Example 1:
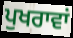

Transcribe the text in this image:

ਪੁਖਰਾਵਾਂ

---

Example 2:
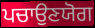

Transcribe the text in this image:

ਪਚਾਉਣਯੋਗ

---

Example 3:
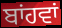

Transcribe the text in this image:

ਬਾਂਹਵਾਂ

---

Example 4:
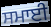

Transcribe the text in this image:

ਸਮਾਈ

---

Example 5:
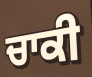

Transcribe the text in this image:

ਚਾਕੀ